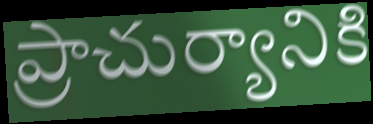
ప్రాచుర్యానికి